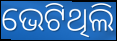
ଭେଟିଥିଲି